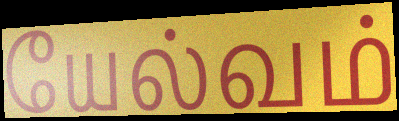
யேல்வம்